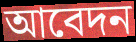
আবেদন